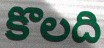
కొలది